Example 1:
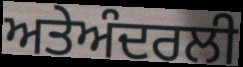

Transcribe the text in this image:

ਅਤੇਅੰਦਰਲੀ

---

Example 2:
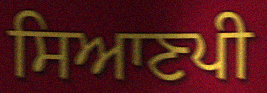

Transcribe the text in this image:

ਸਿਆਣਪੀ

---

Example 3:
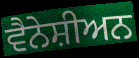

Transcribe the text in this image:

ਵੈਨੇਸ਼ੀਅਨ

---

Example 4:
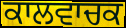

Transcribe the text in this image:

ਕਾਲਵਾਚਕ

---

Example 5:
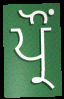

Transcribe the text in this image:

ਪ੍ਰੌਂ